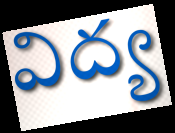
విద్య